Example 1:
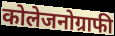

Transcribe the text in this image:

कोलेजनोग्राफी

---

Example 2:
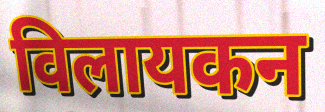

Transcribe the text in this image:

विलायकन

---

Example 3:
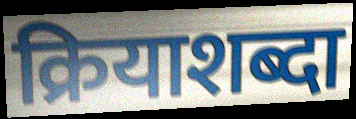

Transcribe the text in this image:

क्रियाशब्दा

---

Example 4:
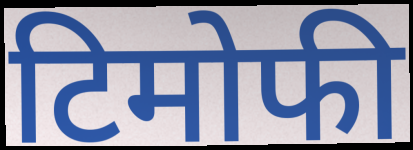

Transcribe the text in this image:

टिमोफी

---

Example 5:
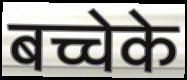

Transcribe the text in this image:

बच्चेके